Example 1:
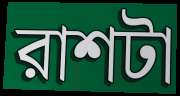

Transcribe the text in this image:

রাশটা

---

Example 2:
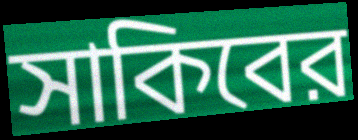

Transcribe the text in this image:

সাকিবের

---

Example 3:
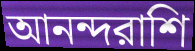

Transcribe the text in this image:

আনন্দরাশি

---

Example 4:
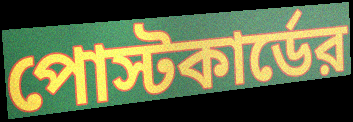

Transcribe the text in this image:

পোস্টকার্ডের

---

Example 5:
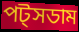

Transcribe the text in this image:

পট্‌সডাম